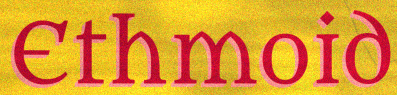
Ethmoid